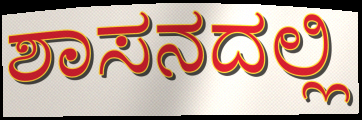
ಶಾಸನದಲ್ಲಿ